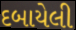
દબાયેલી